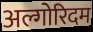
अल्गोरिदम